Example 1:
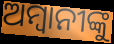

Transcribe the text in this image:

ଅମ୍ବାନୀଙ୍କୁ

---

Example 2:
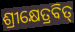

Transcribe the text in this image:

ଶ୍ରୀକ୍ଷେତ୍ରବିତ୍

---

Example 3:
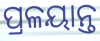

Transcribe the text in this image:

ପ୍ରଳୟାନ୍ତ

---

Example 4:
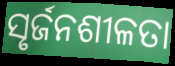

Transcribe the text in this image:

ସୃର୍ଜନଶୀଳତା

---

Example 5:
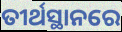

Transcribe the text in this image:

ତୀର୍ଥସ୍ଥାନରେ